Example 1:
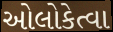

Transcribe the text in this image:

ઓલોકેત્વા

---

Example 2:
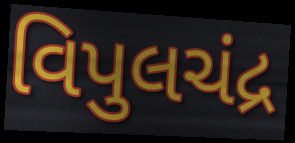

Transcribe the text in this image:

વિપુલચંદ્ર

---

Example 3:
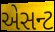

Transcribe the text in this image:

એસન્ટ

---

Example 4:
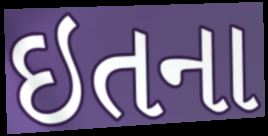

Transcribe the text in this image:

ઇતના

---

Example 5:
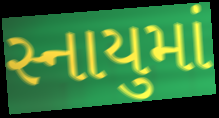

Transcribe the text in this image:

સ્નાયુમાં